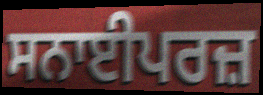
ਸਨਾਈਪਰਜ਼